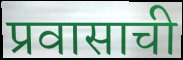
प्रवासाची